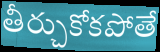
తీర్చుకోకపోతే